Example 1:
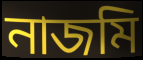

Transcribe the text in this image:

নাজমি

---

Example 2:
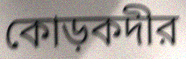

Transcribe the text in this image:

কোড়কদীর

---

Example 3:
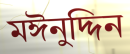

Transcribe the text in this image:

মঈনুদ্দিন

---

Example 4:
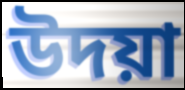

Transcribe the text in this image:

উদয়া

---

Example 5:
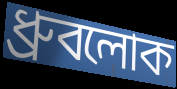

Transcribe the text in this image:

ধ্রুবলোক